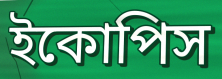
ইকোপিস